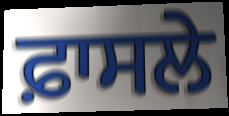
ਫ਼ਾਸਲੇ